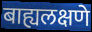
बाह्यलक्षणे